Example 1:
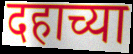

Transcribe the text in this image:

दहाच्या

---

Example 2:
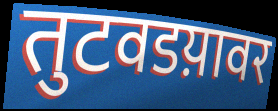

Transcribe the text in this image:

तुटवडय़ावर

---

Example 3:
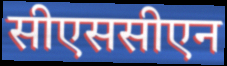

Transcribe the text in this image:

सीएससीएन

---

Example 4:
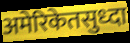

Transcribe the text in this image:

अमेरिकेतसुध्दा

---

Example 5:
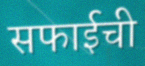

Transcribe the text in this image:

सफाईची